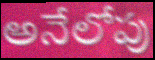
అనేలోపు